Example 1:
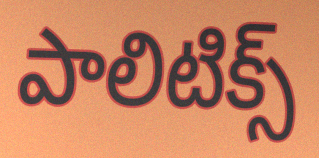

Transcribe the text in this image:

పాలిటిక్స్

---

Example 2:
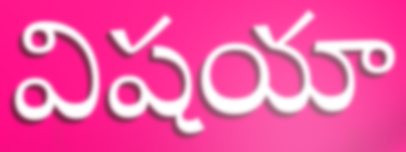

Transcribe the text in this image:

విషయా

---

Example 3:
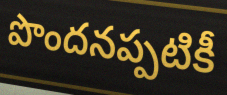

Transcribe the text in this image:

పొందనప్పటికీ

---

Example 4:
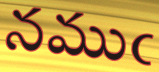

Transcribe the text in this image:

నముఁ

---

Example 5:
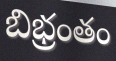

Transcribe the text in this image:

బిభ్రంతం